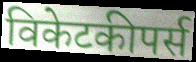
विकेटकीपर्स